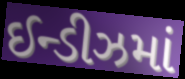
ઈન્ડીઝમાં